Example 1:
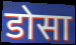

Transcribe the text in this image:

डोसा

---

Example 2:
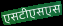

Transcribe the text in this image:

एसटीएसएस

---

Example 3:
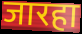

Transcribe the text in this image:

जारहा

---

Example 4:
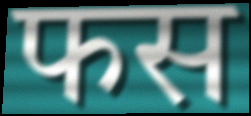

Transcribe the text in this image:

फस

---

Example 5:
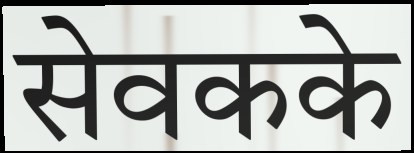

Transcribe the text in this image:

सेवकके